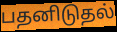
பதனிடுதல்